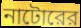
নাটোরের